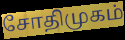
சோதிமுகம்